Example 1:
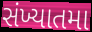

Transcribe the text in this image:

સંખ્યાતમા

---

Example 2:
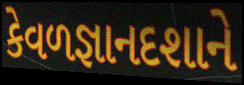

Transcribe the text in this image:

કેવળજ્ઞાનદશાને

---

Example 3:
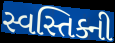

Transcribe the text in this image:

સ્વસ્તિક્ની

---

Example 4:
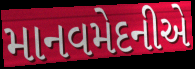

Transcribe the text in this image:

માનવમેદનીએ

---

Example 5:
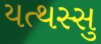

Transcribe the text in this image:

યત્થસ્સુ